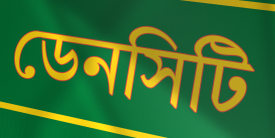
ডেনসিটি